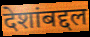
देशांबद्दल